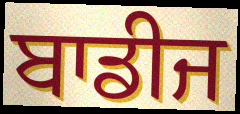
ਬਾਡੀਜ